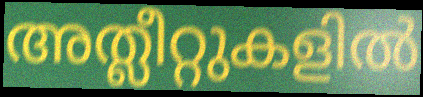
അത്ലീറ്റുകളിൽ